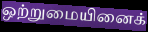
ஒற்றுமையினைக்